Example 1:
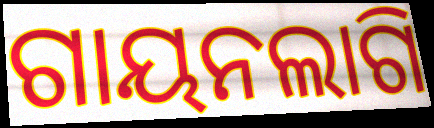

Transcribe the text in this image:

ଗାୟନଲାଗି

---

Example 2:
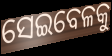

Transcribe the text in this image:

ସେଇବେଳକୁ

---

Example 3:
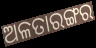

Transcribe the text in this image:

ଅଳତାରଙ୍ଗର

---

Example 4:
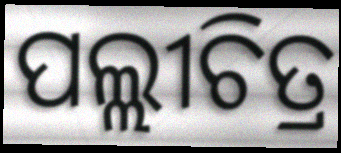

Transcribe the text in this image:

ପଲ୍ଲୀଚିତ୍ର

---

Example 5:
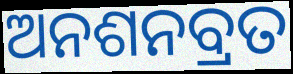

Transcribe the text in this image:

ଅନଶନବ୍ରତ